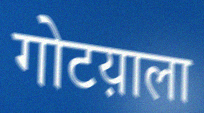
गोटय़ाला